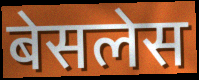
बेसलेस